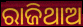
ରାଜିଥାଅ